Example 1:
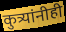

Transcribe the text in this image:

कुत्र्यांनीही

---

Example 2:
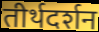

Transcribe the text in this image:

तीर्थदर्शन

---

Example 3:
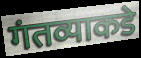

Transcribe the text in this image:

गंतव्याकडे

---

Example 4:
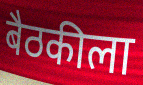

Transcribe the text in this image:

बैठकीला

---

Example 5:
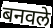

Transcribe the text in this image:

बनवले